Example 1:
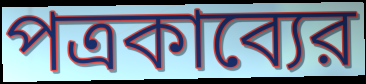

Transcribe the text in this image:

পত্রকাব্যের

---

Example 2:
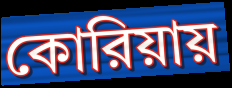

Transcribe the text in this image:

কোরিয়ায়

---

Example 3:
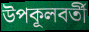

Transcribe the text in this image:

উপকূলবর্তী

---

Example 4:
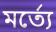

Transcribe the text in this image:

মর্ত্যে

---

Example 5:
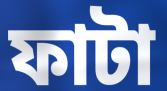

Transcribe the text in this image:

ফাটা